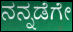
ನನ್ನಡೆಗೇ